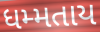
ધમ્મતાય